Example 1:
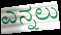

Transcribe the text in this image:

ಎನ್ನಲು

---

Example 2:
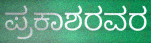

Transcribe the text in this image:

ಪ್ರಕಾಶರವರ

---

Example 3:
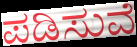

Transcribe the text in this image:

ಪಡಿಸುವೆ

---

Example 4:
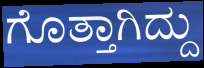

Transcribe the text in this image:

ಗೊತ್ತಾಗಿದ್ದು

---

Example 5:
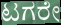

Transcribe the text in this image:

ಟಗರೇ